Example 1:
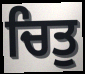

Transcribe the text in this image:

ਚਿਤੁ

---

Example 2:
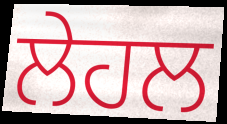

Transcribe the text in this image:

ਲੇਹਲ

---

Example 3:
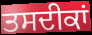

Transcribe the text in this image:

ਤਸਦੀਕਾਂ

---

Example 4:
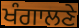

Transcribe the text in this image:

ਖੰਗਾਲਣੇ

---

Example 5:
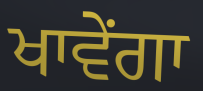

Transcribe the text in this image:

ਖਾਵੇਂਗਾ